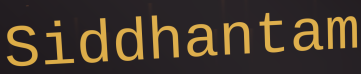
Siddhantam